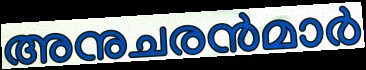
അനുചരൻമാർ